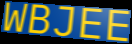
WBJEE